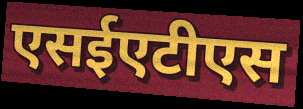
एसईएटीएस